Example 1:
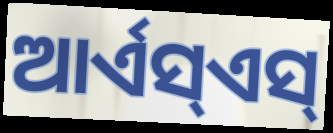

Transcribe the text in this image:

ଆର୍ଏସ୍ଏସ୍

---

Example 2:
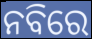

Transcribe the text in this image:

ନବିରେ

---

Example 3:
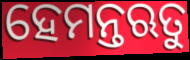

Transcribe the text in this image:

ହେମନ୍ତଋତୁ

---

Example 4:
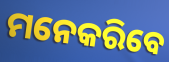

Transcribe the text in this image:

ମନେକରିବେ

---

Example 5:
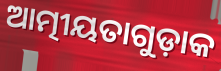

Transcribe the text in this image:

ଆତ୍ମୀୟତାଗୁଡ଼ାକ